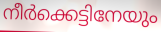
നീർക്കെട്ടിനേയും